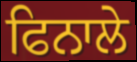
ਫਿਨਾਲੇ